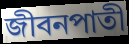
জীবনপাতী